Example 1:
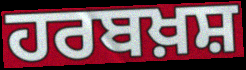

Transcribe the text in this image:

ਹਰਬਖ਼ਸ਼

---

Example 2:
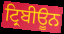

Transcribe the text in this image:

ਟ੍ਰਿਬੀਊਨ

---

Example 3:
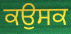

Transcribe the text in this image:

ਕਉਸਕ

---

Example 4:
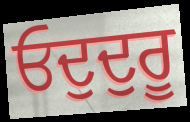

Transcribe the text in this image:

ਓਦੁਦੁਰੂ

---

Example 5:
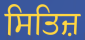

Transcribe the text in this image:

ਸਿਤਿਜ਼